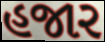
હજાર